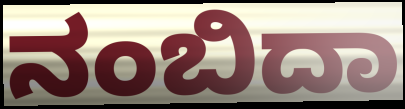
ನಂಬಿದಾ